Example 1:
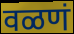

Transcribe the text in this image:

वळणं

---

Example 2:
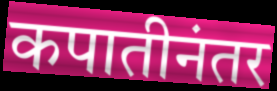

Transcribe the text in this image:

कपातीनंतर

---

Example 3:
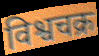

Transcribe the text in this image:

विश्वचक्र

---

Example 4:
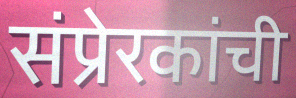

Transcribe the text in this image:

संप्रेरकांची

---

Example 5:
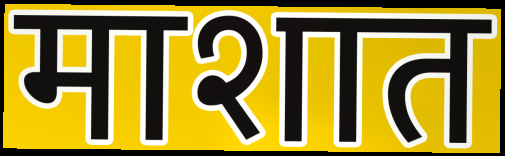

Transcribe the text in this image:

माशात